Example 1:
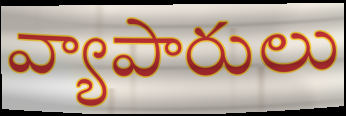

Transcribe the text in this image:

వ్యాపారులు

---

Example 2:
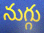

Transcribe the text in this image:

నుగ్గు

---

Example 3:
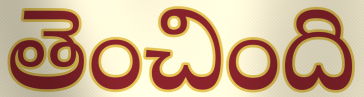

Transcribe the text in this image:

తెంచింది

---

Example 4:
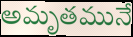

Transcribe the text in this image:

అమృతమునే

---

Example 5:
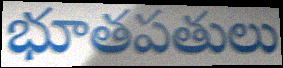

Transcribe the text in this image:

భూతపతులు